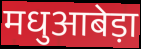
मधुआबेड़ा